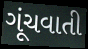
ગૂંચવાતી